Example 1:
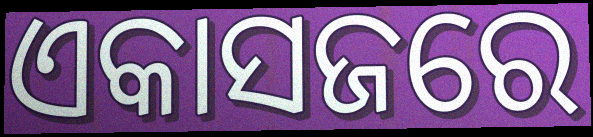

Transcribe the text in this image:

ଏକାସଜରେ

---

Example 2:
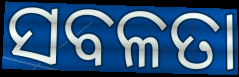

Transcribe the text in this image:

ସବଳତା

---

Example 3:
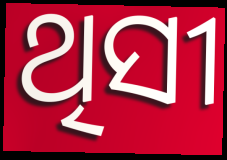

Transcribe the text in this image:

ଥିସୀ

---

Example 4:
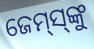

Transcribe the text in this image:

ଜେମ୍‌ସ୍‌ଙ୍କୁ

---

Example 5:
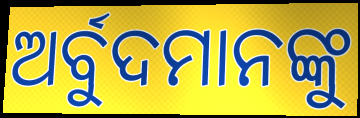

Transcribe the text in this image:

ଅର୍ବୁଦମାନଙ୍କୁ